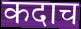
कदाच